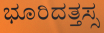
ಭೂರಿದತ್ತಸ್ಸ